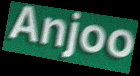
Anjoo